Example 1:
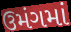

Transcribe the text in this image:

ઉમંગમાં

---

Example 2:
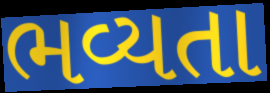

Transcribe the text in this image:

ભવ્યતા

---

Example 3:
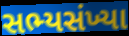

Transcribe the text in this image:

સભ્યસંખ્યા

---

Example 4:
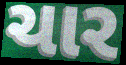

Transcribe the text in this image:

ચાર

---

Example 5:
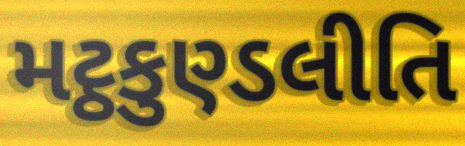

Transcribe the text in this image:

મટ્ઠકુણ્ડલીતિ